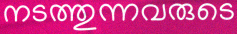
നടത്തുന്നവരുടെ